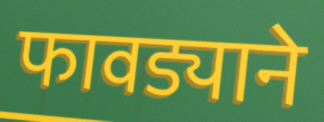
फावड्याने